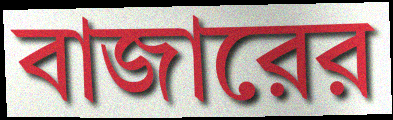
বাজারের